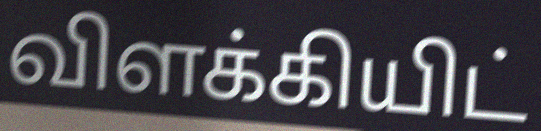
விளக்கியிட்